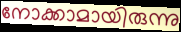
നോക്കാമായിരുന്നു